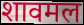
शावमल